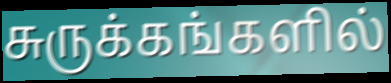
சுருக்கங்களில்